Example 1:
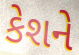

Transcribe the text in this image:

કેશને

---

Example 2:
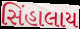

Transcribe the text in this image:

સિંહાલાય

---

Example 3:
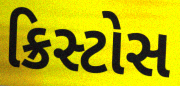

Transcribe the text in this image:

ક્રિસ્ટોસ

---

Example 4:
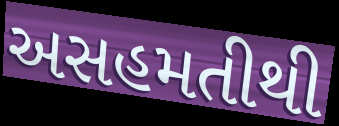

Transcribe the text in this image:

અસહમતીથી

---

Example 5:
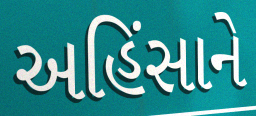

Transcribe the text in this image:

અહિંસાને